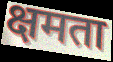
क्षमता